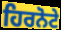
ਹਿਰਨੋਟੇ